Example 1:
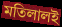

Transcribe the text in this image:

মতিলালই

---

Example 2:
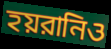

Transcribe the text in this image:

হয়রানিও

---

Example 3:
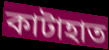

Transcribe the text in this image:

কাটাহাত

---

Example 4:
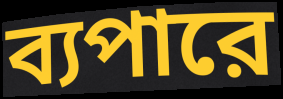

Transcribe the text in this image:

ব্যপারে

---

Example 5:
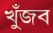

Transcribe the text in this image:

খুঁজব